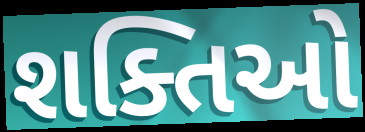
શક્તિઓ